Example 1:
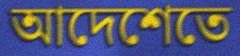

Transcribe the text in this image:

আদেশেতে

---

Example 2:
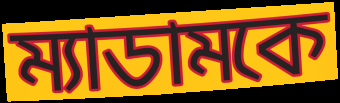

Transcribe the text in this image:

ম্যাডামকে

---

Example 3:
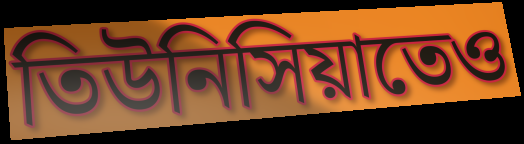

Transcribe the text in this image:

তিউনিসিয়াতেও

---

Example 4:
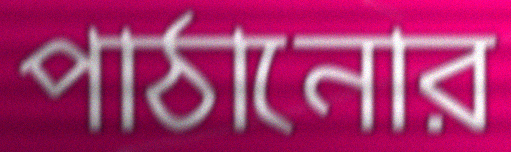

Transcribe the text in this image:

পাঠানোর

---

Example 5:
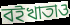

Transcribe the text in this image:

বইখাতাও